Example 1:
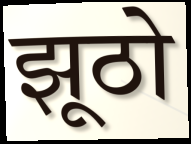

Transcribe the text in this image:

झूठो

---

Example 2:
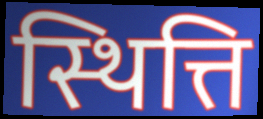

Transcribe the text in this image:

स्थित्ति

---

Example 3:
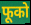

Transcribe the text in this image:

फूको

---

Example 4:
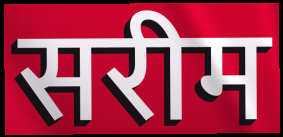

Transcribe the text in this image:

सरीम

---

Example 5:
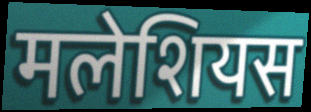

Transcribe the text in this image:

मलेशियस